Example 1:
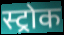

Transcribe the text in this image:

स्ट्रोक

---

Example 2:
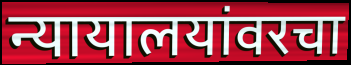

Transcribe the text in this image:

न्यायालयांवरचा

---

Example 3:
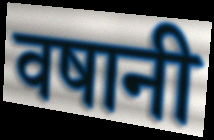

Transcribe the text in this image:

वषानी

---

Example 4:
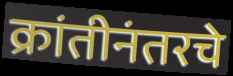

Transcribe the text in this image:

क्रांतीनंतरचे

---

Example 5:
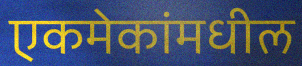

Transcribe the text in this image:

एकमेकांमधील